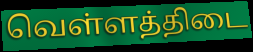
வெள்ளத்திடை